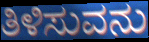
ತಿಳಿಸುವನು